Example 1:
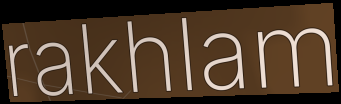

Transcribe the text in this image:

rakhlam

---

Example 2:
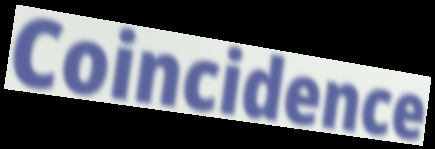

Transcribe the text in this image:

Coincidence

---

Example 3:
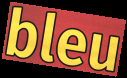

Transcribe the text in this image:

bleu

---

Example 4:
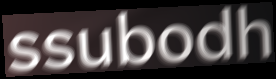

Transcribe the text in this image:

ssubodh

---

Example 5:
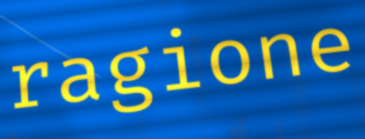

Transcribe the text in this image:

ragione